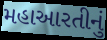
મહાઆરતીનું